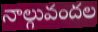
నాల్గువందల